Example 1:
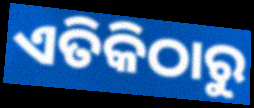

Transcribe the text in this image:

ଏତିକିଠାରୁ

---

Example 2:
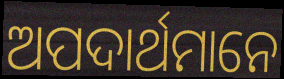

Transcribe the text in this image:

ଅପଦାର୍ଥମାନେ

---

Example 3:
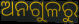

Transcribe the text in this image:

ଅନଗୁଳରୁ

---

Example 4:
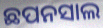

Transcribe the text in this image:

ଛପନସାଲ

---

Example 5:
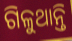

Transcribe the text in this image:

ଗିଳୁଥାନ୍ତି